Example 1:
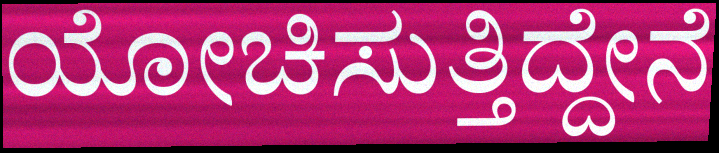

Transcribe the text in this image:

ಯೋಚಿಸುತ್ತಿದ್ದೇನೆ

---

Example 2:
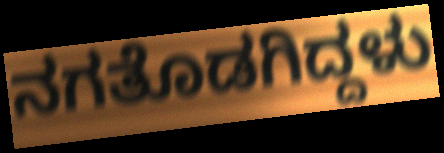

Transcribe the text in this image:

ನಗತೊಡಗಿದ್ದಳು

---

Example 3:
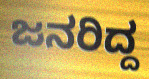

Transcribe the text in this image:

ಜನರಿದ್ದ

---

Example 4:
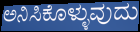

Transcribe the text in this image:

ಅನಿಸಿಕೊಳ್ಳುವುದು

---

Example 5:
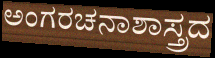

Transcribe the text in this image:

ಅಂಗರಚನಾಶಾಸ್ತ್ರದ